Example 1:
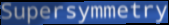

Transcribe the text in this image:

Supersymmetry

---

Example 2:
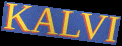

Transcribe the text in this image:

KALVI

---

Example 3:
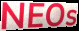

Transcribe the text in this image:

NEOs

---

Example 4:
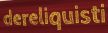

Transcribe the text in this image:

dereliquisti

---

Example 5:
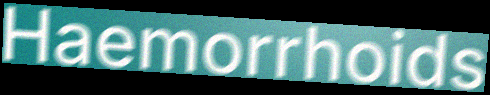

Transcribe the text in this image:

Haemorrhoids